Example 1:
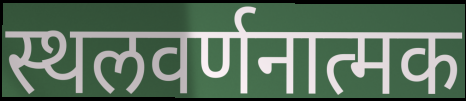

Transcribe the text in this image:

स्थलवर्णनात्मक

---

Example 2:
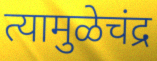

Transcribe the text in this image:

त्यामुळेचंद्र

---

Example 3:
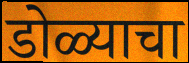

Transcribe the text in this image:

डोळ्याचा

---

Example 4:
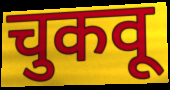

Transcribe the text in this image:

चुकवू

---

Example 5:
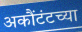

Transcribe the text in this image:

अकौंटंटच्या